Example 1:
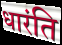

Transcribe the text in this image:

धारंति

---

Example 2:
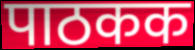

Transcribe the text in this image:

पाठकक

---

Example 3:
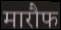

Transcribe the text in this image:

मारौफ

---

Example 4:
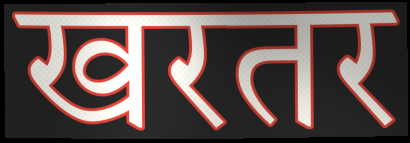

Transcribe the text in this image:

खरतर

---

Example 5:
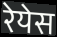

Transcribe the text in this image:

रेयेस